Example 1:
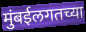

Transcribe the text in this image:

मुंबईलगतच्या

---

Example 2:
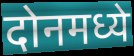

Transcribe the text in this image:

दोनमध्ये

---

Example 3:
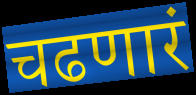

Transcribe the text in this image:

चढणारं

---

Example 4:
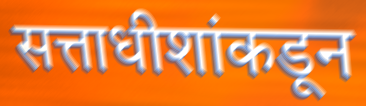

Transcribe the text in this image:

सत्ताधीशांकडून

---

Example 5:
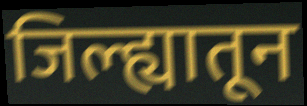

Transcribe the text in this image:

जिल्ह्यातून